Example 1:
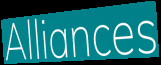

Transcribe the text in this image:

Alliances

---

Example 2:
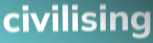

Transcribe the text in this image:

civilising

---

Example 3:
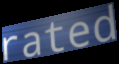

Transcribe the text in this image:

rated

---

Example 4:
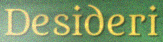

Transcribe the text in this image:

Desideri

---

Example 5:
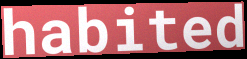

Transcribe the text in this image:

habited